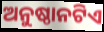
ଅନୁଷ୍ଠାନଟିଏ